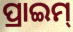
ପ୍ରାଇମ୍